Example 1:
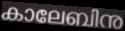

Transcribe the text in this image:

കാലേബിനു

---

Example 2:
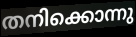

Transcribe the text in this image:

തനിക്കൊന്നു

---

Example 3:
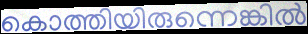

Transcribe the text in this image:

കൊത്തിയിരുന്നെങ്കിൽ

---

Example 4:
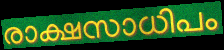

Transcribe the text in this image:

രാക്ഷസാധിപം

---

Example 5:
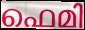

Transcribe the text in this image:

ഫെമി